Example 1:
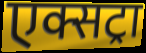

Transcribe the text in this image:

एक्सट्रा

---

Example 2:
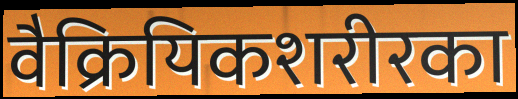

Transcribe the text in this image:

वैक्रियिकशरीरका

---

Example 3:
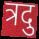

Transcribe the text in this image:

त्रदु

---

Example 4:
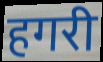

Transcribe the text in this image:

हगरी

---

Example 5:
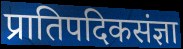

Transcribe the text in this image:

प्रातिपदिकसंज्ञा